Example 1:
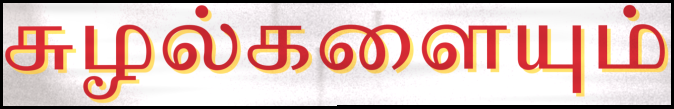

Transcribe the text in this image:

சுழல்களையும்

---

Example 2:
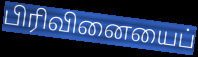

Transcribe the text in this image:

பிரிவினையைப்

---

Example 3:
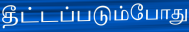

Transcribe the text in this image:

தீட்டப்படும்போது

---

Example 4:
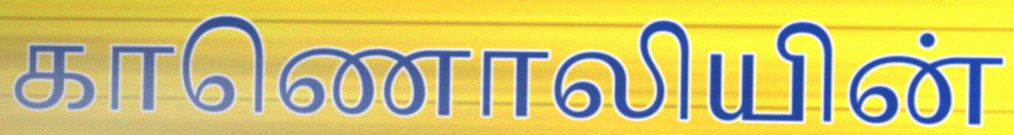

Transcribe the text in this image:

காணொலியின்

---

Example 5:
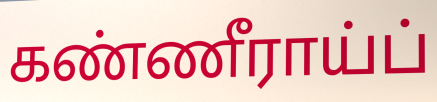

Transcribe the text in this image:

கண்ணீராய்ப்